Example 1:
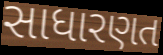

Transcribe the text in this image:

સાધારણત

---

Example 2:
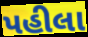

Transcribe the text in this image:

પહીલા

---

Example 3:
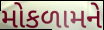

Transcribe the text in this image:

મોકળામને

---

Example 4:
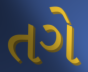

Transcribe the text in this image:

તગે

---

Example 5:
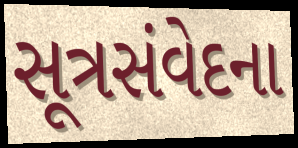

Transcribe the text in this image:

સૂત્રસંવેદના